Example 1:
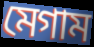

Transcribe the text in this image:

মেগাম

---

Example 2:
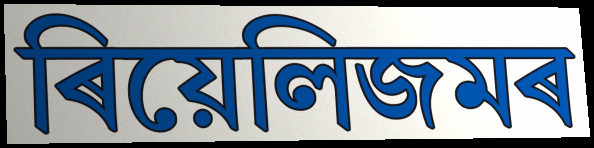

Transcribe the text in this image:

ৰিয়েলিজমৰ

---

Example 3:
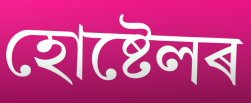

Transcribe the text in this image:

হোষ্টেলৰ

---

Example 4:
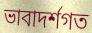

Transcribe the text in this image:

ভাবাদৰ্শগত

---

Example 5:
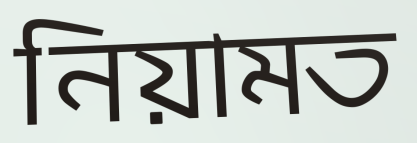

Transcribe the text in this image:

নিয়ামত